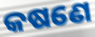
କଷଣେ